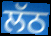
ਲੱਠ